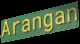
Arangan